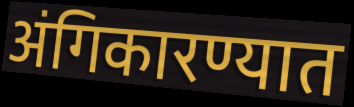
अंगिकारण्यात